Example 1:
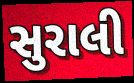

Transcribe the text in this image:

સુરાલી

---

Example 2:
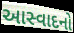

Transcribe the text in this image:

આસ્વાદનો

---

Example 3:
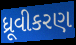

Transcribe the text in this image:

ધ્રૂવીકરણ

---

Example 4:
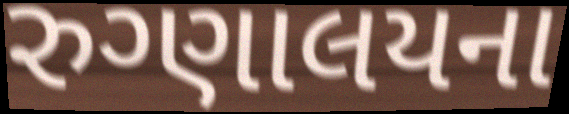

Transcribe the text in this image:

રુગ્ણાલયના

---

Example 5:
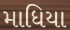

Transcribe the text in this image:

માધિયા